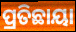
ପ୍ରତିଛାୟା